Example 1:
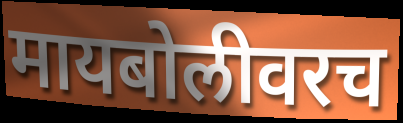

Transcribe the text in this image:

मायबोलीवरच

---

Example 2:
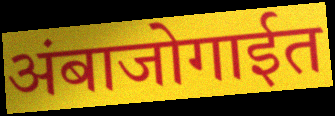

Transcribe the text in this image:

अंबाजोगाईत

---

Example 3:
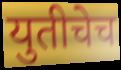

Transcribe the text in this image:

युतीचेच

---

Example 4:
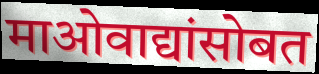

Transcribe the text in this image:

माओवाद्यांसोबत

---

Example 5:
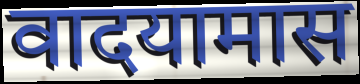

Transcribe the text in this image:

वादयामास